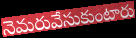
నెమరువేసుకుంటారు